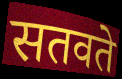
सतवते